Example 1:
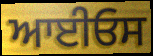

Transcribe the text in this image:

ਆਈਓਸ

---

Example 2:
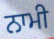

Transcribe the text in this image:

ਨਾਮੀ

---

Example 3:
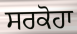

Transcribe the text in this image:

ਸਰਕੋਹਾ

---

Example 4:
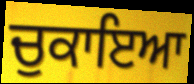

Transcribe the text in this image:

ਚੁਕਾਇਆ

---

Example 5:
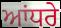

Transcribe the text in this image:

ਆਂਧਰੇ